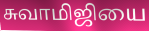
சுவாமிஜியை